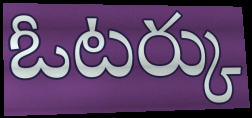
ఓటర్కు